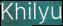
Khilyu